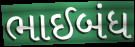
ભાઈબંધ